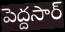
పెద్దసార్